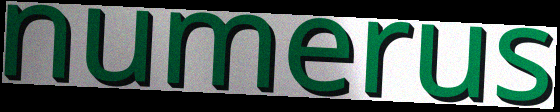
numerus